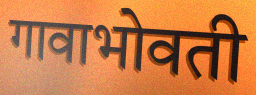
गावाभोवती